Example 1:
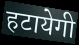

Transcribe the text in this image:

हटायेगी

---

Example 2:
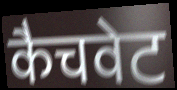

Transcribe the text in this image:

कैचवेट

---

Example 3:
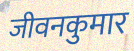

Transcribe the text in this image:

जीवनकुमार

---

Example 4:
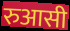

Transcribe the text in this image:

रुआसी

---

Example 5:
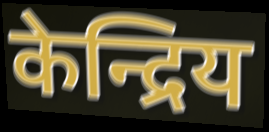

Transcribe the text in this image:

केन्द्रिय